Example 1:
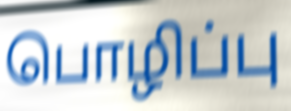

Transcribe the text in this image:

பொழிப்பு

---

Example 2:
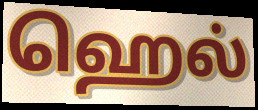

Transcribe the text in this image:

ஹெல்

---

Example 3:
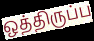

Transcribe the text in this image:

ஒத்திருப்ப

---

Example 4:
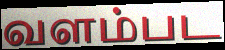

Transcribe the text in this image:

வளம்பட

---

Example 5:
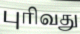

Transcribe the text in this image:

புரிவது